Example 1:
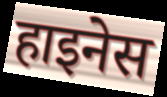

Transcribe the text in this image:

हाइनेस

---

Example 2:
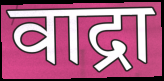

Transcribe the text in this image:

वाद्रा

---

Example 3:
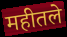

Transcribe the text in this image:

महीतले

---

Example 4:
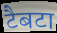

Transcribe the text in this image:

टैबटा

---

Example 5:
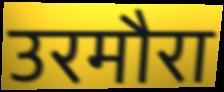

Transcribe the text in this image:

उरमौरा